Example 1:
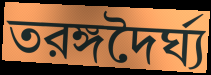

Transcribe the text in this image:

তরঙ্গদৈর্ঘ্য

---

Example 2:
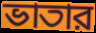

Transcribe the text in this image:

ভাতার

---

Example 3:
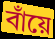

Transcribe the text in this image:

বাঁয়ে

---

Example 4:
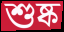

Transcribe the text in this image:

শুষ্ক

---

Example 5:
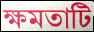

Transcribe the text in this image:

ক্ষমতাটি